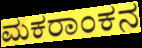
ಮಕರಾಂಕನ